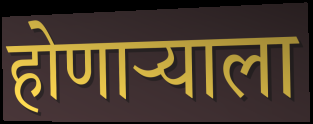
होणाऱ्याला